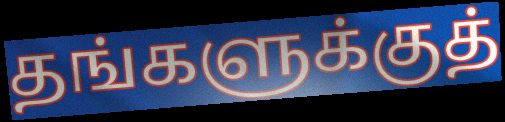
தங்களுக்குத்